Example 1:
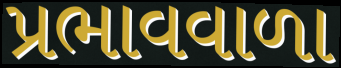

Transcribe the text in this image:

પ્રભાવવાળા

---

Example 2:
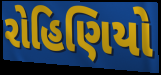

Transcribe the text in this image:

રોહિણિયો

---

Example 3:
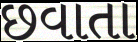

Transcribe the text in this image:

છવાતા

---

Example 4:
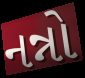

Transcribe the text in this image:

નન્નો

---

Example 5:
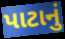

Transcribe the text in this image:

પાટાનું